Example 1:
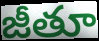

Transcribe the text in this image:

జీతూ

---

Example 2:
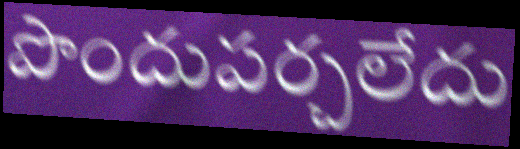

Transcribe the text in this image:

పొందుపర్చలేదు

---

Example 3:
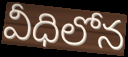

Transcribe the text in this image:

వీధిలోన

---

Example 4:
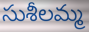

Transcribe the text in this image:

సుశీలమ్మ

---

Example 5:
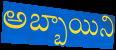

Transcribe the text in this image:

అబ్బాయిని